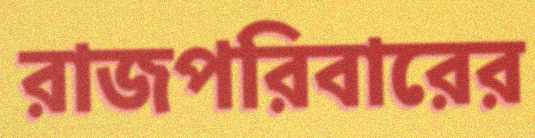
রাজপরিবারের